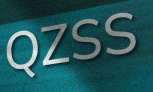
QZSS